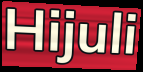
Hijuli